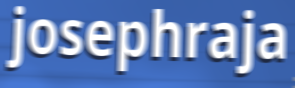
josephraja